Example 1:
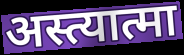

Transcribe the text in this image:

अस्त्यात्मा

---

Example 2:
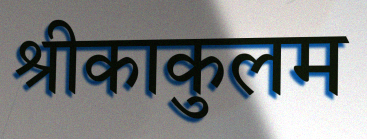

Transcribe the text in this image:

श्रीकाकुलम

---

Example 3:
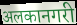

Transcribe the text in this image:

अलकानगरी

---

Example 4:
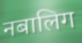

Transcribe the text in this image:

नबालिग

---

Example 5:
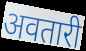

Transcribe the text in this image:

अवतारी